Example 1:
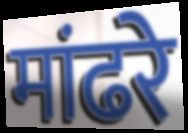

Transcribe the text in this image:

मांढरे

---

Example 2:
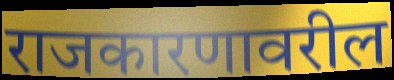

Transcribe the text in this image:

राजकारणावरील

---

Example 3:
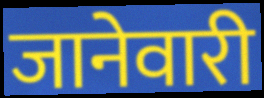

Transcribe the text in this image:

जानेवारी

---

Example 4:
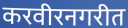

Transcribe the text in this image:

करवीरनगरीत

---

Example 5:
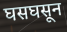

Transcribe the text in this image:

घसघसून